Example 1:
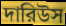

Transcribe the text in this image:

দারিউস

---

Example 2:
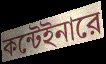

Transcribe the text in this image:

কন্টেইনারে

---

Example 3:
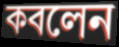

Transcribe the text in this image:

কবলেন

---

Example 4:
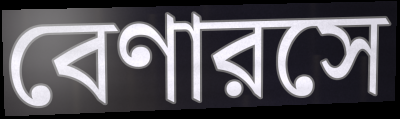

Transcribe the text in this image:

বেণারসে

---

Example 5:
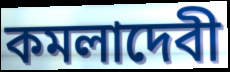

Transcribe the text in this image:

কমলাদেবী